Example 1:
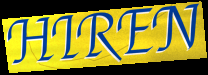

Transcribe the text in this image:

HIREN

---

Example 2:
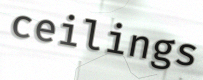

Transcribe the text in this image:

ceilings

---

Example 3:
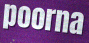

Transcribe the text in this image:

poorna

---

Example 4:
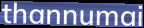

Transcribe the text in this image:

thannumai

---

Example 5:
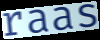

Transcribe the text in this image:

raas